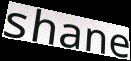
shane